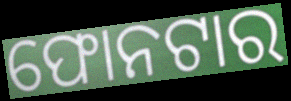
ଫୋନଟାର